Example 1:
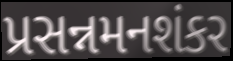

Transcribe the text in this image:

પ્રસન્નમનશંકર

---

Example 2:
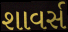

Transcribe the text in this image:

શાવર્સ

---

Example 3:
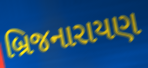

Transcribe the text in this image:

બ્રિજનારાયણ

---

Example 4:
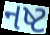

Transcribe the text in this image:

નષ્ટ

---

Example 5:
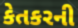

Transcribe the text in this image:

કેતકરની